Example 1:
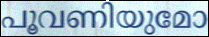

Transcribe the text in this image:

പൂവണിയുമോ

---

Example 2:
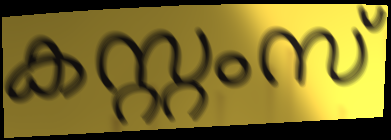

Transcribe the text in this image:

കസ്റ്റംസ്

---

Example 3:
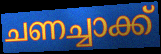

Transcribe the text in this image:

ചണച്ചാക്ക്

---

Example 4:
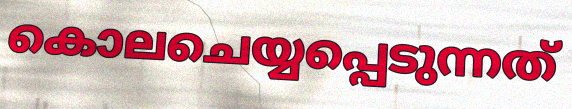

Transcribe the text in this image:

കൊലചെയ്യപ്പെടുന്നത്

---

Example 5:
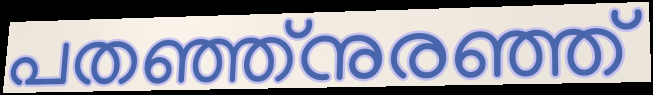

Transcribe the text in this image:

പതഞ്ഞ്നുരഞ്ഞ്